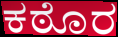
ಕಠೊರ